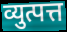
व्युत्पत्त